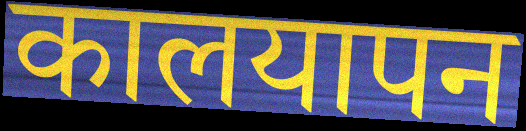
कालयापन